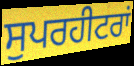
ਸੁਪਰਹੀਟਰਾਂ